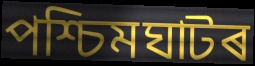
পশ্চিমঘাটৰ